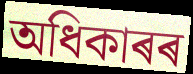
অধিকাৰৰ